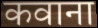
कवाना